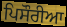
ਪਿਸੌਰੀਆ